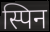
स्पिन